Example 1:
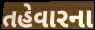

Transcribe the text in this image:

તહેવારના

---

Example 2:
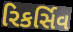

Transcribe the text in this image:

રિકર્સિવ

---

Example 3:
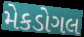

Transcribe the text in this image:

મેકડોગલ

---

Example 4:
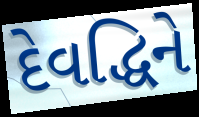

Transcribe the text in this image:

દેવદ્ધિને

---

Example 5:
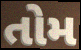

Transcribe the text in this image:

તોમ